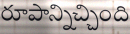
రూపాన్నిచ్చింది